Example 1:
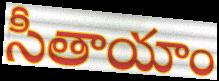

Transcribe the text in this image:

సీతాయాం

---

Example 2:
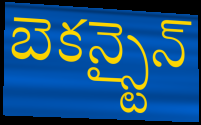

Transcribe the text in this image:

బెకన్స్టైన్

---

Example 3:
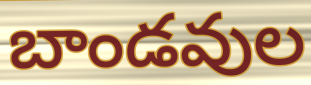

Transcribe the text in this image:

బాండవుల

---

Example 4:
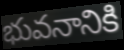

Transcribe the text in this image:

భువనానికి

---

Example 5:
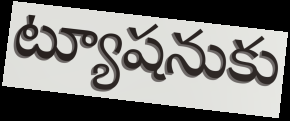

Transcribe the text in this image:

ట్యూషనుకు